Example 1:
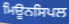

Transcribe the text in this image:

ਮਿਊਨਸਿਪਲ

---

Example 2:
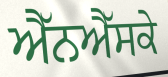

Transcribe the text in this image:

ਐੱਨਐੱਸਕੇ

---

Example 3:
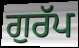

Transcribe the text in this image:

ਗੁਰੱਪ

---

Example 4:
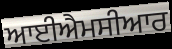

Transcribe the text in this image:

ਆਈਐਮਸੀਆਰ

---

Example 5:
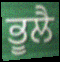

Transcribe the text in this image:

ਭੂਲੈ